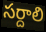
సర్దాలి